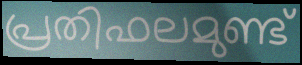
പ്രതിഫലമുണ്ട്